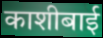
काशीबाई